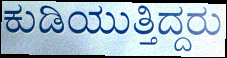
ಕುಡಿಯುತ್ತಿದ್ದರು